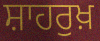
ਸ਼ਾਹਰੁਖ਼